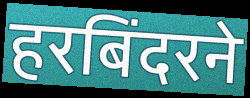
हरबिंदरने